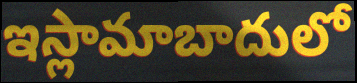
ఇస్లామాబాదులో